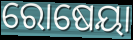
ରୋଷେୟା